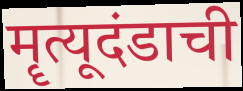
मॄत्यूदंडाची